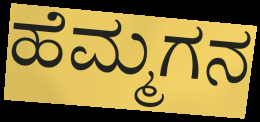
ಹೆಮ್ಮಗನ